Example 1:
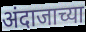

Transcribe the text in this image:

अंदाजाच्या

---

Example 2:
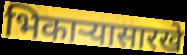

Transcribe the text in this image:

भिकार्‍यासारखे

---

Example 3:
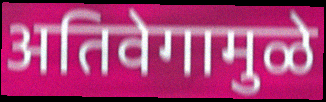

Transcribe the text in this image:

अतिवेगामुळे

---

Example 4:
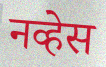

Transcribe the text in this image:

नव्हेस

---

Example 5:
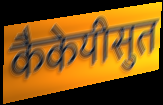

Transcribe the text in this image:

कैकेयीसुत